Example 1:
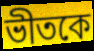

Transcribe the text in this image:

ভীতকে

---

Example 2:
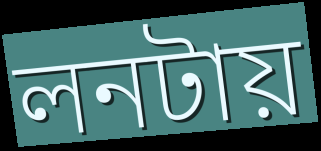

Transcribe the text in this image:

লনটায়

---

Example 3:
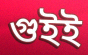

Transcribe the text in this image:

গুইই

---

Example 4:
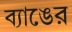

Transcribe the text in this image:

ব্যাঙের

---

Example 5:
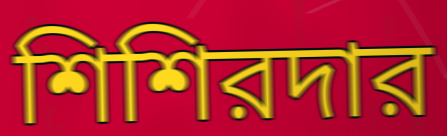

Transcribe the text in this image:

শিশিরদার